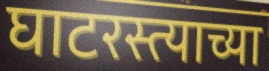
घाटरस्त्याच्या